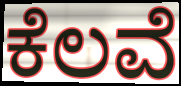
ಕೆಲವೆ